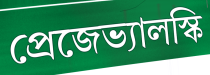
প্রেজেভ্যালস্কি